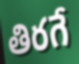
తిరగే